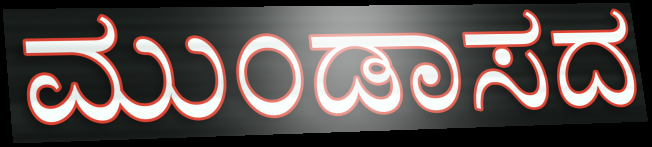
ಮುಂಡಾಸದ